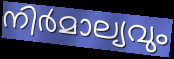
നിർമാല്യവും